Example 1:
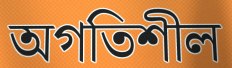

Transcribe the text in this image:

অগতিশীল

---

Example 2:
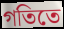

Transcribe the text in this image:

গতিতে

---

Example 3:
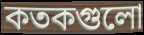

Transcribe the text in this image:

কতকগুলো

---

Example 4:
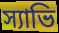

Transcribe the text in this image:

স্যাভি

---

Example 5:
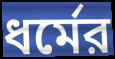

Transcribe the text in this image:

ধর্মের